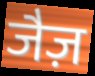
जैज़